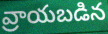
వ్రాయబడిన